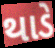
થાડે